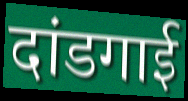
दांडगाई